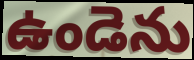
ఉండెను